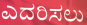
ಎದರಿಸಲು